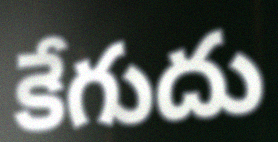
కేగుదు